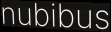
nubibus